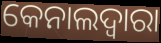
କେନାଲଦ୍ଵାରା